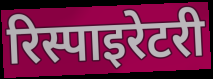
रिस्पाइरेटरी